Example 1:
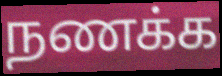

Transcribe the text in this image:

நணக்க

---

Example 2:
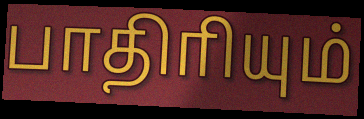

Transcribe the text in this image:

பாதிரியும்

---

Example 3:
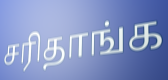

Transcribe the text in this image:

சரிதாங்க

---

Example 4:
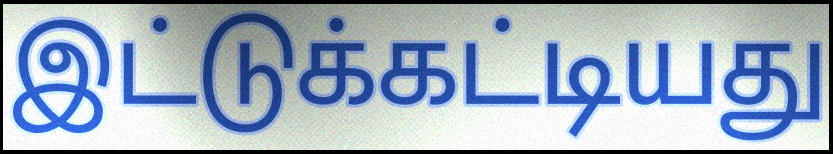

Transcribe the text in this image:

இட்டுக்கட்டியது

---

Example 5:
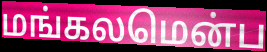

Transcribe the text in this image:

மங்கலமென்ப